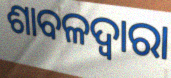
ଶାବଳଦ୍ୱାରା